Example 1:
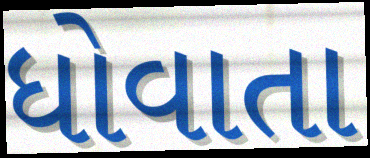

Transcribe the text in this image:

ધોવાતા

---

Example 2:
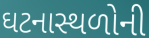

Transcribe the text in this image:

ઘટનાસ્થળોની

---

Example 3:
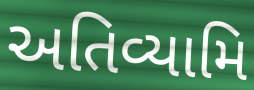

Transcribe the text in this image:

અતિવ્યામિ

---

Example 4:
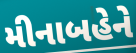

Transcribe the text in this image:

મીનાબહેને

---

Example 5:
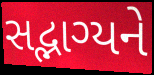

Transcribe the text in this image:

સદ્ભાગ્યને